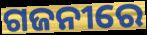
ଗଜନୀରେ